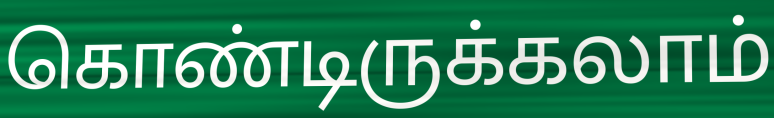
கொண்டிருக்கலாம்